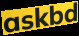
askbd